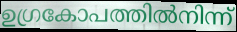
ഉഗ്രകോപത്തിൽനിന്ന്